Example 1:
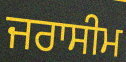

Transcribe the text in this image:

ਜਰਾਸੀਮ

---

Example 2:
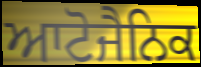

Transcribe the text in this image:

ਆਟੋਜੈਨਿਕ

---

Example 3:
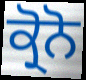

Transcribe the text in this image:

ਕ੍ਰੋਨੋ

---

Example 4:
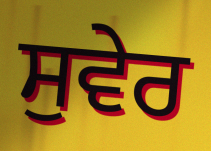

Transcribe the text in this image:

ਸੁਵੇਰ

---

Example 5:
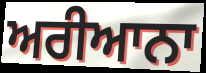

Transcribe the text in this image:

ਅਰੀਆਨਾ